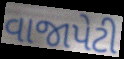
વાજાપેટી